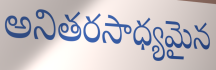
అనితరసాధ్యమైన